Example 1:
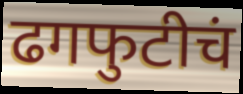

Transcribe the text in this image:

ढगफुटीचं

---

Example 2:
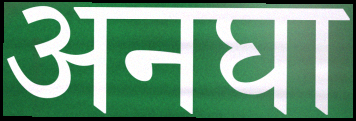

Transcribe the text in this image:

अनघा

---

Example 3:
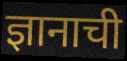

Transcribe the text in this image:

ज्ञानाची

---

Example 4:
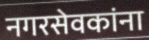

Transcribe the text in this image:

नगरसेवकांना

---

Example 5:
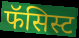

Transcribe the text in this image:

फॅसिस्ट